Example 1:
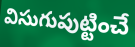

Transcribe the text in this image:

విసుగుపుట్టించే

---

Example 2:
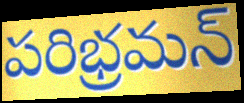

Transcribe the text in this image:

పరిభ్రమన్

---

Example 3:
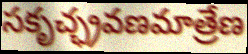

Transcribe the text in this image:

సకృచ్ఛ్రవణమాత్రేణ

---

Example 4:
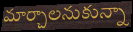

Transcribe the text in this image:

మార్చాలనుకున్నా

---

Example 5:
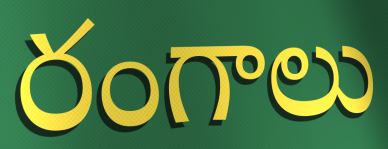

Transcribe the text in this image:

రంగాలు